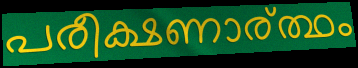
പരീക്ഷണാര്ത്ഥം